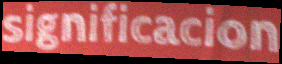
significacion